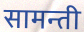
सामन्ती